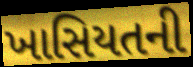
ખાસિયતની